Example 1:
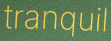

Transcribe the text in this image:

tranquil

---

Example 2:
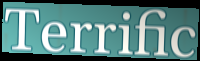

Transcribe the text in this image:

Terrific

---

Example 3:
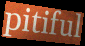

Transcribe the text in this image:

pitiful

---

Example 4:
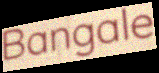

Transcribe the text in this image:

Bangale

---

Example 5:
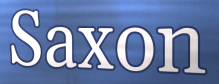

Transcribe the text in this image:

Saxon